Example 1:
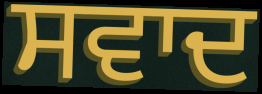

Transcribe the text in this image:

ਸਵਾਦ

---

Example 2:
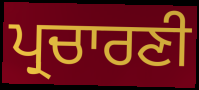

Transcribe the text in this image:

ਪ੍ਰਚਾਰਣੀ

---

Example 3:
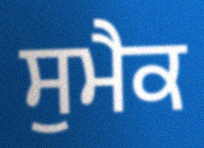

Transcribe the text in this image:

ਸੁਮੈਕ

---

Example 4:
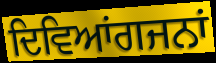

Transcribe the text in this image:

ਦਿਵਿਆਂਗਜਨਾਂ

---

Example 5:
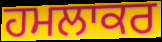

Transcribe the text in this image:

ਹਮਲਾਕਰ